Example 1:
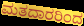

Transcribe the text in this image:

ಮತದಾರರಿಂದ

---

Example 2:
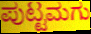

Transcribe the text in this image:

ಪುಟ್ಟಮಗು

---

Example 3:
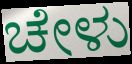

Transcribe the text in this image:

ಚೇಳು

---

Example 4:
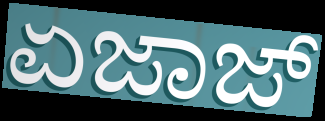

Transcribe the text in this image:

ಏಜಾಜ್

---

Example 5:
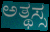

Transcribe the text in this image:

ಅತ್ಥಸ್ಸ